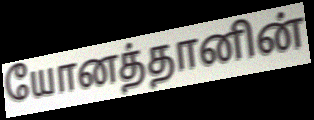
யோனத்தானின்